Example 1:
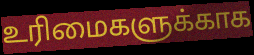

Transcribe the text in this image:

உரிமைகளுக்காக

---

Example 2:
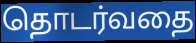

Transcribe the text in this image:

தொடர்வதை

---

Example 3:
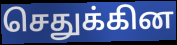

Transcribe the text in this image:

செதுக்கின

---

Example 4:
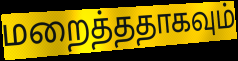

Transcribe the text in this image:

மறைத்ததாகவும்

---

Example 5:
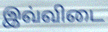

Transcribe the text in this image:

இவ்விடை